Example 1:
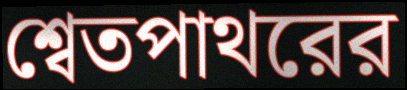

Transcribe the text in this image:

শ্বেতপাথরের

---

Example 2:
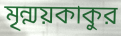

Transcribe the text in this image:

মৃন্ময়কাকুর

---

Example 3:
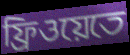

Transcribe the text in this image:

ফ্রিওয়েতে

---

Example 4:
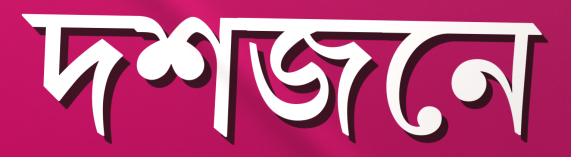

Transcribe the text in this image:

দশজনে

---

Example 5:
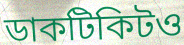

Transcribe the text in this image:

ডাকটিকিটও